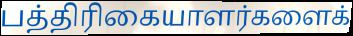
பத்திரிகையாளர்களைக்